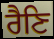
ਰੈਣਿ